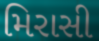
મિરાસી